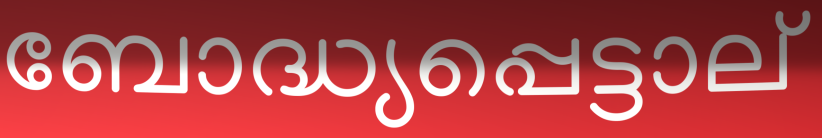
ബോദ്ധ്യപ്പെട്ടാല്